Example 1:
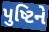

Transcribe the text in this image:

પુષ્ટિને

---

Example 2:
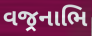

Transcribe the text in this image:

વજ્રનાભિ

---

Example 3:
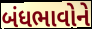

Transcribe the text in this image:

બંધભાવોને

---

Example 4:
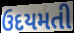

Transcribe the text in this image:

ઉદયમતી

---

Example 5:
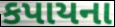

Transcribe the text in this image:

કપાયના